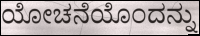
ಯೋಚನೆಯೊಂದನ್ನು